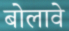
बोलावे